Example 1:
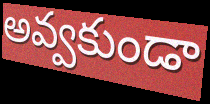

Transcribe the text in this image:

అవ్వకుండా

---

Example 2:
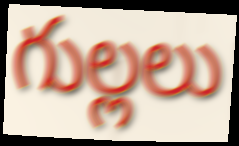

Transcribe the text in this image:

గుల్లలు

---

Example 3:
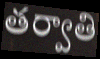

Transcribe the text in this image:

తర్వాతి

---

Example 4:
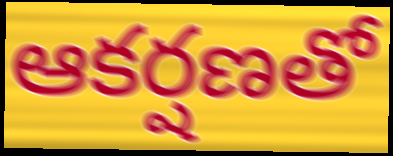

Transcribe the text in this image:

ఆకర్షణతో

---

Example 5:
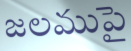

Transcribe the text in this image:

జలముపై